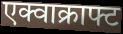
एक्वाक्राफ्ट